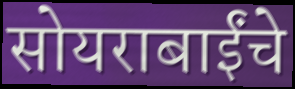
सोयराबाईंचे